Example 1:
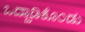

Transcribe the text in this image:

ಒದ್ದಾಡಿಕೊಂಡು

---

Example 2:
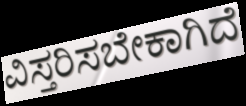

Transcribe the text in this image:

ವಿಸ್ತರಿಸಬೇಕಾಗಿದೆ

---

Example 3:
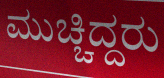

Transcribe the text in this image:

ಮುಚ್ಚಿದ್ದರು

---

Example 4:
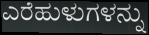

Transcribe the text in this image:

ಎರೆಹುಳುಗಳನ್ನು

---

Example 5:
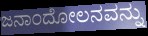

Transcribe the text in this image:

ಜನಾಂದೋಲನವನ್ನು